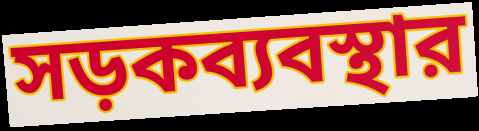
সড়কব্যবস্থার